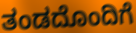
ತಂಡದೊಂದಿಗೆ